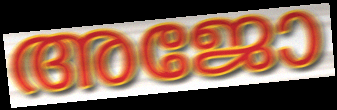
അജോ